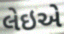
લેઇએ